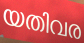
യതിവര